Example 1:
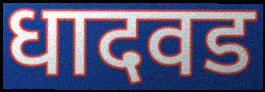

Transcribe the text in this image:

धादवड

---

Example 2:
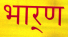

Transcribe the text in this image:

भार्ण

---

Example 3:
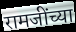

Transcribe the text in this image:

रामजींच्या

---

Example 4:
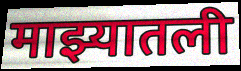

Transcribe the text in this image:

माझ्यातली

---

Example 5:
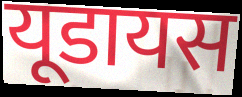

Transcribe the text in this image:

यूडायस